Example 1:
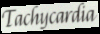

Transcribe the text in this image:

Tachycardia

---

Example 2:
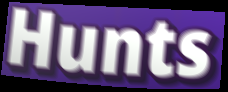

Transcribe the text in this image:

Hunts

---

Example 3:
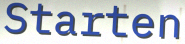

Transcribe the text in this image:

Starten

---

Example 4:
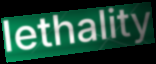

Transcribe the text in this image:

lethality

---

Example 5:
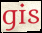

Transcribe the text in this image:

gis